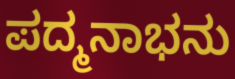
ಪದ್ಮನಾಭನು